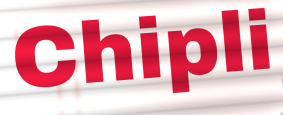
Chipli